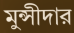
মুন্সীদার